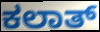
ಕಲಾತ್